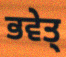
ਭਵੇਤ੍